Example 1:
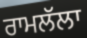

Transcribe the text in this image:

ਰਾਮਲੱਲਾ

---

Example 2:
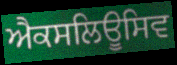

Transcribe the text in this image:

ਐਕਸਲਿਊਸਿਵ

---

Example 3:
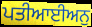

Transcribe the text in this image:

ਪਤੀਆਈਅਨੁ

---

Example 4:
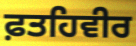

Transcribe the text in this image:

ਫ਼ਤਹਿਵੀਰ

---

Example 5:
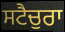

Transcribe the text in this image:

ਸਟੈਚੁਰਾ